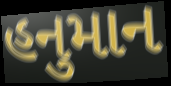
હનુમાન